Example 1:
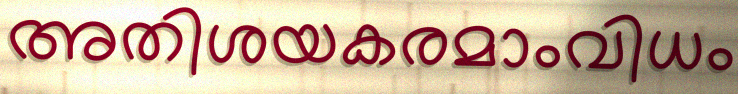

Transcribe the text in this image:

അതിശയകരമാംവിധം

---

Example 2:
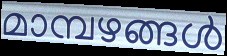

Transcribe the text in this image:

മാമ്പഴങ്ങൾ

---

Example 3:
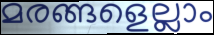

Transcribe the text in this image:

മരങ്ങളെല്ലാം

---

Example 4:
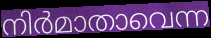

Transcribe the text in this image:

നിർമാതാവെന്ന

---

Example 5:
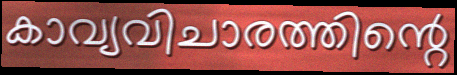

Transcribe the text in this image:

കാവ്യവിചാരത്തിന്റെ